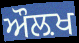
ਔਲ਼ਖ